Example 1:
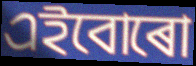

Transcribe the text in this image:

এইবোৰো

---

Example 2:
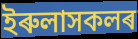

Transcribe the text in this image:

ইৰুলাসকলৰ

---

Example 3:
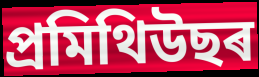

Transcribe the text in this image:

প্ৰমিথিউছৰ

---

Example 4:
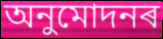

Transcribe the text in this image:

অনুমোদনৰ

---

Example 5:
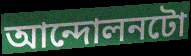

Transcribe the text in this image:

আন্দোলনটো